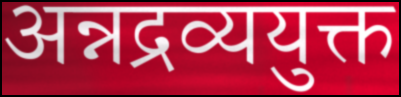
अन्नद्रव्ययुक्त